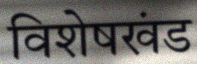
विशेषखंड